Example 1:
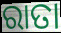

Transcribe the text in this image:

ରାତା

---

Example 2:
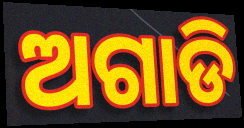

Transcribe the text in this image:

ଅଗାଡି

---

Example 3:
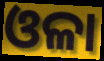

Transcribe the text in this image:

ଓଳା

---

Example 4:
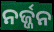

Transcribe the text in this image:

ନର୍ଜ୍ଜନ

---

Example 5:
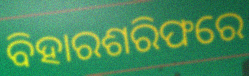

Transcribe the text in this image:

ବିହାରଶରିଫରେ